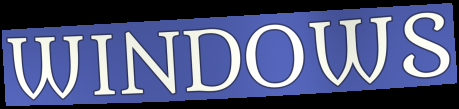
WINDOWS